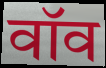
वॉव